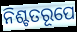
ନିଶ୍ଚତରୂପେ